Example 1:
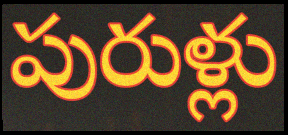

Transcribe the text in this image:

పురుళ్లు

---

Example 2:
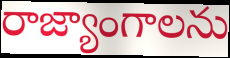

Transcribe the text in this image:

రాజ్యాంగాలను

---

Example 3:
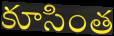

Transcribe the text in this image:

కూసింత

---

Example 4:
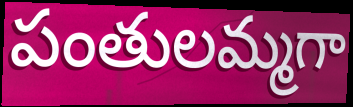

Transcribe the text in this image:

పంతులమ్మగా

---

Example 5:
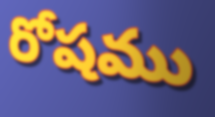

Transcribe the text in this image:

రోషము